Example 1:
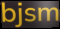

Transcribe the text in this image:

bjsm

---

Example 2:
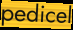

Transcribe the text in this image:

pedicel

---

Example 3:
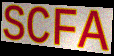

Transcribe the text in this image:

SCFA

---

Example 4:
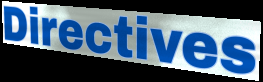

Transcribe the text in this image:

Directives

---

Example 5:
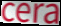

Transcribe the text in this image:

cera